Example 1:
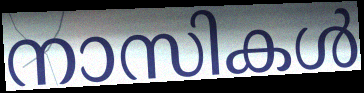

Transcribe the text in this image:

നാസികൾ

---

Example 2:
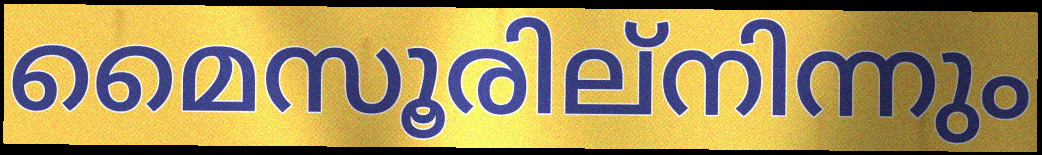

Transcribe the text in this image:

മൈസൂരില്നിന്നും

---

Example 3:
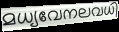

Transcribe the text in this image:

മധ്യവേനലവധി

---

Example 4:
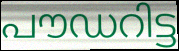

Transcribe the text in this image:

പൗഡറിട്ട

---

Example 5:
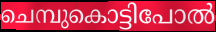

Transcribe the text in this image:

ചെമ്പുകൊട്ടിപോൽ